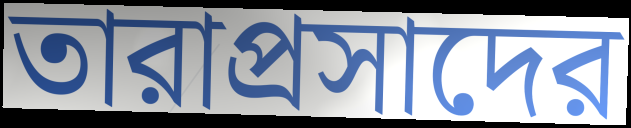
তারাপ্রসাদের